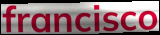
francisco